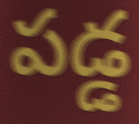
పడ్డ